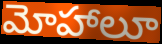
మోహాలూ